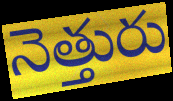
నెత్తురు